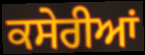
ਕਸੇਰੀਆਂ